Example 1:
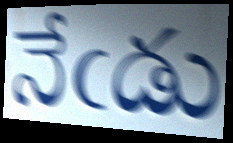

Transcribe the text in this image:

నేఁడు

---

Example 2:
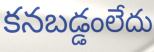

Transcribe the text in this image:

కనబడ్డంలేదు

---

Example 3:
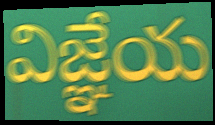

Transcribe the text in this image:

విజ్ఞేయ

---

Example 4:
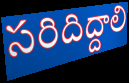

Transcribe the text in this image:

సరిదిద్దాలి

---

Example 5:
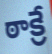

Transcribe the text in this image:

ఠాక్రే